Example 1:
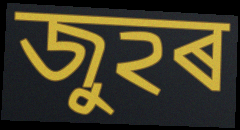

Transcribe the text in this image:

জুহৰ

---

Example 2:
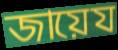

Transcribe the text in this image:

জায়েয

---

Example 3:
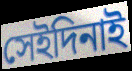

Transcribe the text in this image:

সেইদিনাই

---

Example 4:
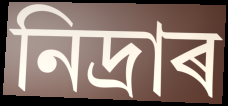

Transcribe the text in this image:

নিদ্ৰাৰ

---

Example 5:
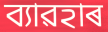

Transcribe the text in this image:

ব্যাৱহাৰ